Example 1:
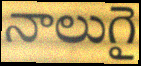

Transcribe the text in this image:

నాలుగై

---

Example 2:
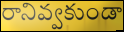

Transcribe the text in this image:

రానివ్వకుండా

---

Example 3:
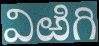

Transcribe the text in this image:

విఱిగి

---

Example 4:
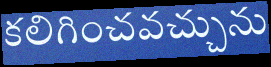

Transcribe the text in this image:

కలిగించవచ్చును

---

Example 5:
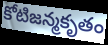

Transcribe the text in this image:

కోటిజన్మకృతం